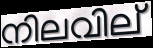
നിലവില്